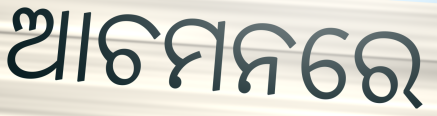
ଆଚମନରେ